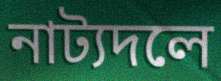
নাট্যদলে